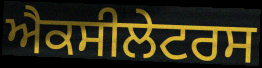
ਐਕਸੀਲੇਟਰਸ